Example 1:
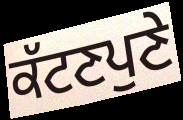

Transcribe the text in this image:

ਕੱਟਣਪੁਣੇ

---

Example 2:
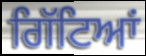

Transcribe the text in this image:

ਗਿੱਟਿਆਂ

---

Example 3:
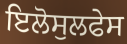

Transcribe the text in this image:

ਇਲੋਸੁਲਫੇਸ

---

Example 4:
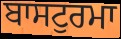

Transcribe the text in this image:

ਬਾਸਟੁਰਮਾ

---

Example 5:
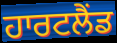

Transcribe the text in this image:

ਹਾਰਟਲੈਂਡ